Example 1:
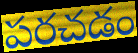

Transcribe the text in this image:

పరచడం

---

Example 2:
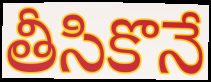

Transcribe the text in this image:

తీసికొనే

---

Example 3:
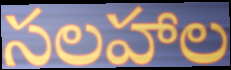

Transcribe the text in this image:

సలహాల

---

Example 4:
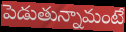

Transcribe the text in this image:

పెడుతున్నామంటే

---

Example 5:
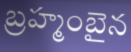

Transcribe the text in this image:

బ్రహ్మంబైన